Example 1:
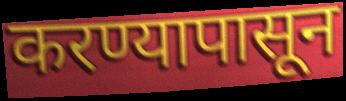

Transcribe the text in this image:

करण्यापासून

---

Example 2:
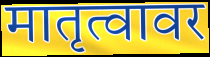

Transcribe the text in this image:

मातृत्वावर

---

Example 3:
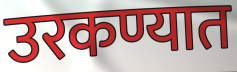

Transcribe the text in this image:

उरकण्यात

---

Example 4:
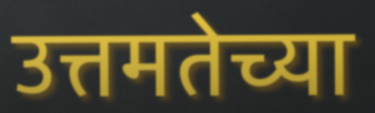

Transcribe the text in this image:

उत्तमतेच्या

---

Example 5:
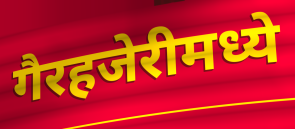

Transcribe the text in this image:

गैरहजेरीमध्ये